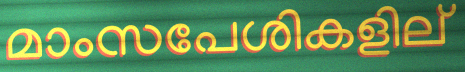
മാംസപേശികളില്